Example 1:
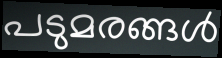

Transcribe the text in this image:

പടുമരങ്ങൾ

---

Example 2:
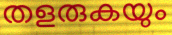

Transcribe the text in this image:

തളരുകയും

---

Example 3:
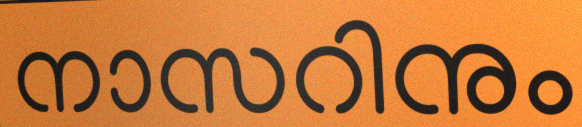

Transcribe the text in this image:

നാസറിനും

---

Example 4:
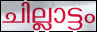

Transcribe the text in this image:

ചില്ലാട്ടം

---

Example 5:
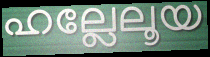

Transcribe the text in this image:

ഹല്ലേലൂയ